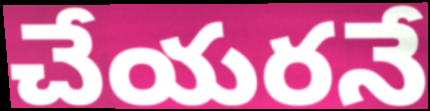
చేయరనే